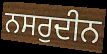
ਨਸਰੁਦੀਨ